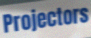
Projectors